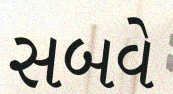
સબવે